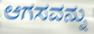
ಆಗಸವನ್ನು